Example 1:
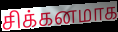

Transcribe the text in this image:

சிக்கனமாக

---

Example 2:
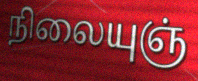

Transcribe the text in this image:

நிலையுஞ்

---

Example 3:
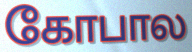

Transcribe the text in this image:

கோபால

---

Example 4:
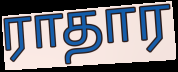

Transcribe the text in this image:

ராதார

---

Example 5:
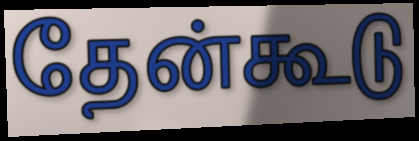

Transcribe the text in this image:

தேன்கூடு